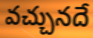
వచ్చునదే